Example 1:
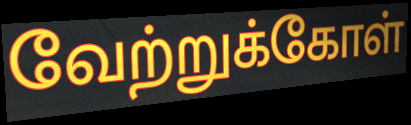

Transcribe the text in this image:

வேற்றுக்கோள்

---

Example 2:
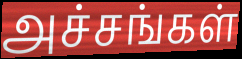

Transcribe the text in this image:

அச்சங்கள்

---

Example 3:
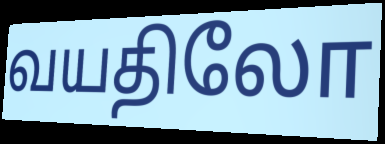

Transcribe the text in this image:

வயதிலோ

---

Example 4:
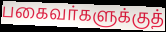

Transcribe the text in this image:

பகைவர்களுக்குத்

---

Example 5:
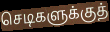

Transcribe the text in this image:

செடிகளுக்குத்